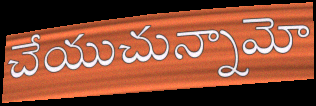
చేయుచున్నామో